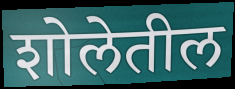
शोलेतील